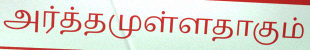
அர்த்தமுள்ளதாகும்